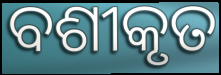
ବଶୀକୃତ